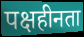
पक्षहीनता